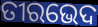
ତୀରଭେଦ